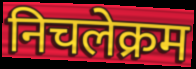
निचलेक्रम